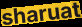
sharuat